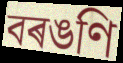
বৰঙণি